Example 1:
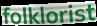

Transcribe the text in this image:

folklorist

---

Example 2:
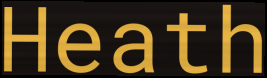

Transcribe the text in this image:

Heath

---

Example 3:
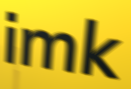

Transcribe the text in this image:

imk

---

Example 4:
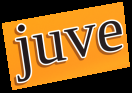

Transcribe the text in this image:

juve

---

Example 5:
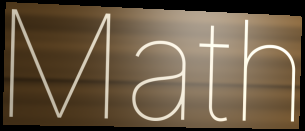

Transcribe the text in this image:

Math